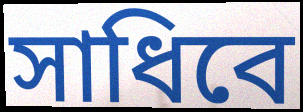
সাধিবে